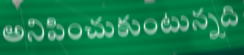
అనిపించుకుంటున్నది